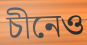
চীনেও